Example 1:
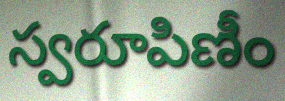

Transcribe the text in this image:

స్వరూపిణీం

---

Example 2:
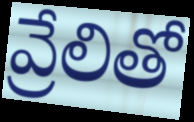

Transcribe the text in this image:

వ్రేలితో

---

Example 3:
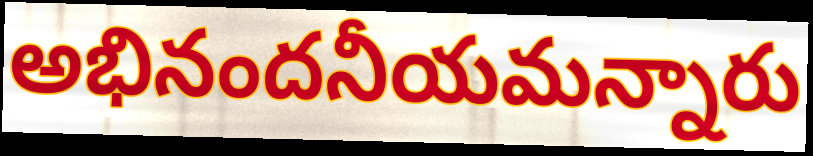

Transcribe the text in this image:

అభినందనీయమన్నారు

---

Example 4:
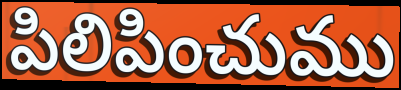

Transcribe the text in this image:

పిలిపించుము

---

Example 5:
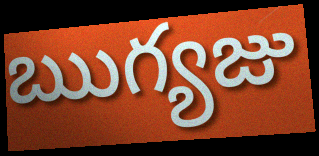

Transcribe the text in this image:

ఋగ్యజు